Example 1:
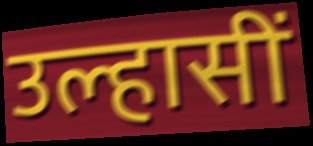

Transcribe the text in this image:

उल्हासीं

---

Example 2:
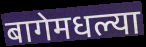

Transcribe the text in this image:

बागेमधल्या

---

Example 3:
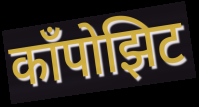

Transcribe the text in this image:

काँपोझिट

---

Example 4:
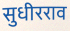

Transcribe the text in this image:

सुधीरराव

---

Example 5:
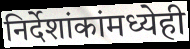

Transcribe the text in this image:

निर्देशांकांमध्येही